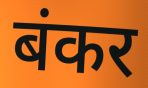
बंकर